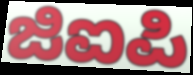
ಜಿಐಪಿ